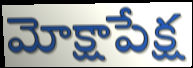
మోక్షాపేక్ష